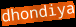
dhondiya